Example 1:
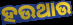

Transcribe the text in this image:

ହଉଥାଉ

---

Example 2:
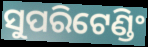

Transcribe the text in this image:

ସୁପରିଟେଣ୍ଡିଂ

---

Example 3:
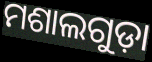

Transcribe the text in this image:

ମଶାଲଗୁଡ଼ା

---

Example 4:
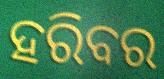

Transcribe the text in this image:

ହରିବର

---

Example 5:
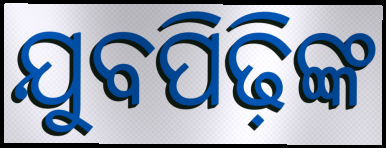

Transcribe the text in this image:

ଯୁବପିଢ଼ିଙ୍କ